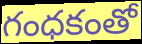
గంధకంతో